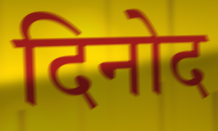
दिनोद